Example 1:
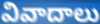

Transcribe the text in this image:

వివాదాలు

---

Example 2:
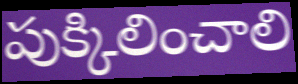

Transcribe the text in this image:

పుక్కిలించాలి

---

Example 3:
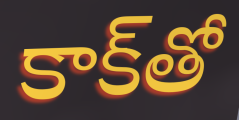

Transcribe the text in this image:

కాక్‌తో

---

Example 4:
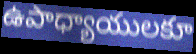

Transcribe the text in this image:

ఉపాధ్యాయులకూ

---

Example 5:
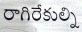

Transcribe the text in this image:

రాగిరేకుల్ని